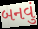
બનવું